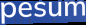
pesum